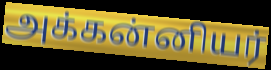
அக்கன்னியர்